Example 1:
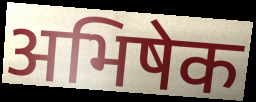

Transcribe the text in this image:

अभिषेक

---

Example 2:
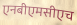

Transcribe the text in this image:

एनबीएमसीएच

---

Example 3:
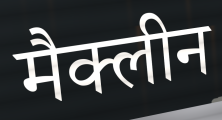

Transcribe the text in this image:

मैक्लीन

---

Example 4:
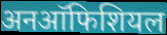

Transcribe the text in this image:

अनऑफिशियल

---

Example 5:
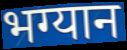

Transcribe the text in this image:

भग्यान